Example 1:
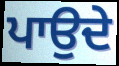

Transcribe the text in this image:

ਪਾਉਦੇ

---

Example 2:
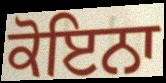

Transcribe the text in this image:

ਕੋਇਨਾ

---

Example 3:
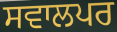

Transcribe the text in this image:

ਸਵਾਲਪਰ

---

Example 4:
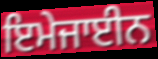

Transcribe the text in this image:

ਇਮੇਜਾਈਨ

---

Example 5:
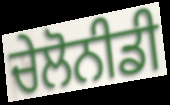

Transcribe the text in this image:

ਚੇਲੋਨੀਡੀ